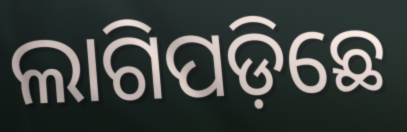
ଲାଗିପଡ଼ିଛେ